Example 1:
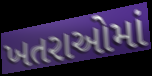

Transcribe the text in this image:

ખતરાઓમાં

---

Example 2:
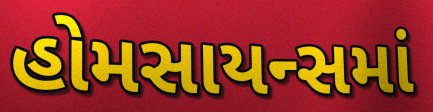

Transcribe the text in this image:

હોમસાયન્સમાં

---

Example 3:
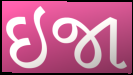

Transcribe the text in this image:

ઇજા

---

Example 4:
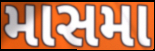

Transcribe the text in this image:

માસમા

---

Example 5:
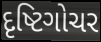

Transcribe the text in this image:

દૃષ્ટિગોચર